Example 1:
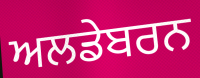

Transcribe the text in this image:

ਅਲਡੇਬਰਨ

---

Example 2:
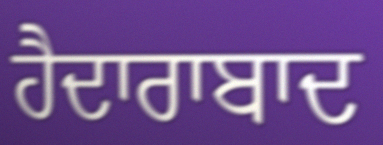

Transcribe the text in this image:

ਹੈਦਾਰਾਬਾਦ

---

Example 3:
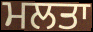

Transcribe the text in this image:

ਮਲਤਾ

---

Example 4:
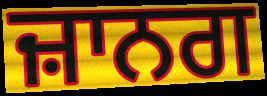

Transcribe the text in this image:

ਜ਼ਾਨਗ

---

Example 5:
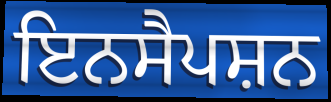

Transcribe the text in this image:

ਇਨਸੈਪਸ਼ਨ